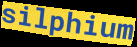
silphium